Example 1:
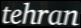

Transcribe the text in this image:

tehran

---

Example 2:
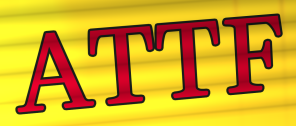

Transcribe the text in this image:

ATTF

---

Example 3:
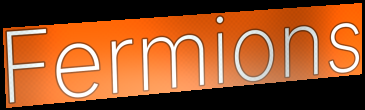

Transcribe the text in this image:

Fermions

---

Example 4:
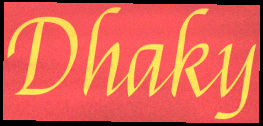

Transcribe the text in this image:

Dhaky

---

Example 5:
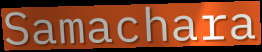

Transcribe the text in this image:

Samachara